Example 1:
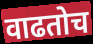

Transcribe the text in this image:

वाढतोच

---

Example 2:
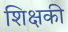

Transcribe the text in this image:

शिक्षकी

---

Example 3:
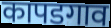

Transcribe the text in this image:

कापडगाव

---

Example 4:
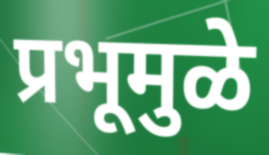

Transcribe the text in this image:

प्रभूमुळे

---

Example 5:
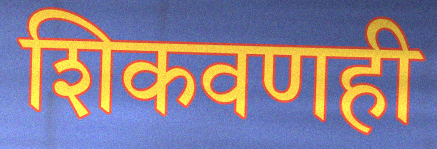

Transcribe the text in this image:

शिकवणही